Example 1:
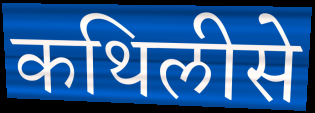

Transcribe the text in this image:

कथिलीसे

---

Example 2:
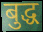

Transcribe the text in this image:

बुद्ध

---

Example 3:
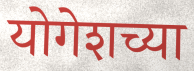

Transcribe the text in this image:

योगेशच्या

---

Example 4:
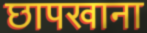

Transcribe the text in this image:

छापखाना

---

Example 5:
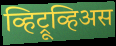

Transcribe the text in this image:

व्हिट्रूव्हिअस